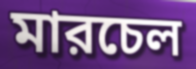
মারচেল